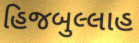
હિજબુલ્લાહ